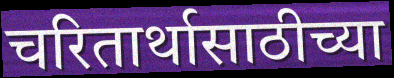
चरितार्थासाठीच्या